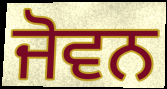
ਜੋਵਨ